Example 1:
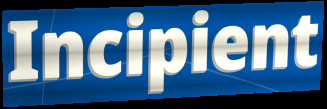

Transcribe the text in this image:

Incipient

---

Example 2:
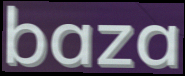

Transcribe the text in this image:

baza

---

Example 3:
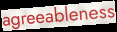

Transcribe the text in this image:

agreeableness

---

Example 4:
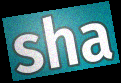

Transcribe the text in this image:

sha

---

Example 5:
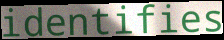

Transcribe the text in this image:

identifies